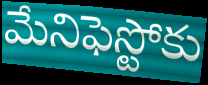
మేనిఫెస్టోకు